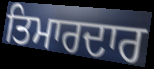
ਤਿਮਾਰਦਾਰ